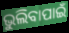
ଭୁଲିବାପାଇଁ